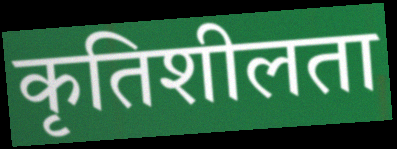
कृतिशीलता